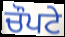
ਚੌਪਟੇ